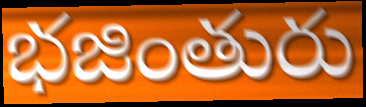
భజింతురు